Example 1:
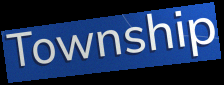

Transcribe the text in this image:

Township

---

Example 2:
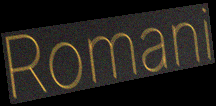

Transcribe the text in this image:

Romani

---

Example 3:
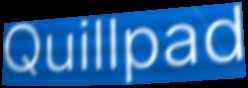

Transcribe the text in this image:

Quillpad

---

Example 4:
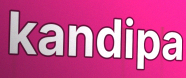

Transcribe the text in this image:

kandipa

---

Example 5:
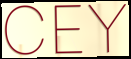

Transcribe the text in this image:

CEY